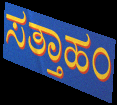
ಸತ್ತಾಹಂ